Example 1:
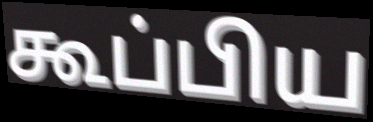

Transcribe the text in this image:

கூப்பிய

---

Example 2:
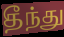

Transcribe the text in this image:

தீந்து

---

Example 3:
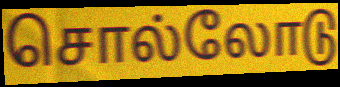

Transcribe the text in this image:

சொல்லோடு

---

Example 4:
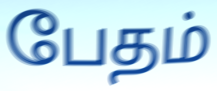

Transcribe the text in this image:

பேதம்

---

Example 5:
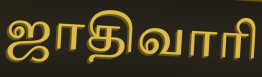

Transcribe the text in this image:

ஜாதிவாரி